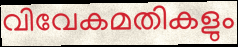
വിവേകമതികളും